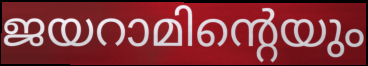
ജയറാമിന്റെയും